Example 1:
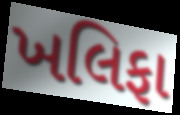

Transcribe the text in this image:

ખલિફા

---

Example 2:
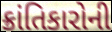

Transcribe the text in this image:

ક્રાંતિકારોની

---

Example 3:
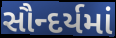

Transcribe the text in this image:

સૌન્દર્યમાં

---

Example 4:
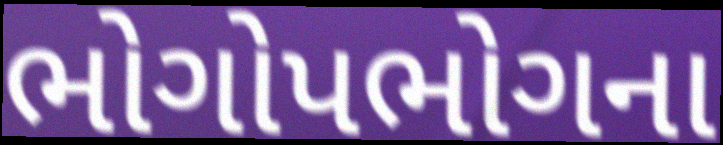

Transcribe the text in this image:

ભોગોપભોગના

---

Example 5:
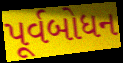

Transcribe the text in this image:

પૂર્વબોધન